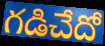
గడిచేదో